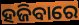
ହଜିବାରେ